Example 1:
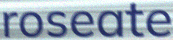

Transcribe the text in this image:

roseate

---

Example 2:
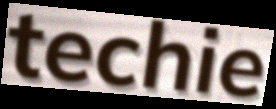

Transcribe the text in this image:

techie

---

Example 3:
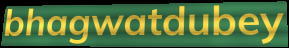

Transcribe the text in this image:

bhagwatdubey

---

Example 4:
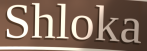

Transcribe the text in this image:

Shloka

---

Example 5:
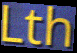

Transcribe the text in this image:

Lth